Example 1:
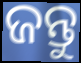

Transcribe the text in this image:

ଜନ୍ତୁ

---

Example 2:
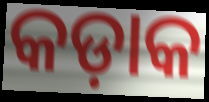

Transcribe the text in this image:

କଡ଼ାକ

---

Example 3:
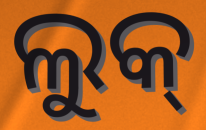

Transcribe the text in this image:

ଲୁକ୍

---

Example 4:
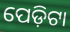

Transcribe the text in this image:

ପେଡ଼ିଟା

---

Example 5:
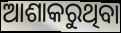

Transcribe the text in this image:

ଆଶାକରୁଥିବା